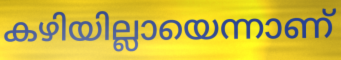
കഴിയില്ലായെന്നാണ്